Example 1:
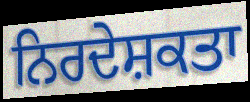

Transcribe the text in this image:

ਨਿਰਦੇਸ਼ਕਤਾ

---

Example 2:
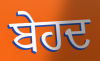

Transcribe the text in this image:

ਬੇਹਦ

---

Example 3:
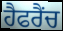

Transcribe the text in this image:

ਹੈਫਰੈਂਚ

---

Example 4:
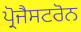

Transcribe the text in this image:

ਪ੍ਰੋਜੈਸਟਰੋਨ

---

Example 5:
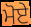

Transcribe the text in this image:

ਮੋਏ